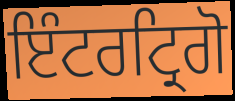
ਇੰਟਰਟ੍ਰਿਗੋ